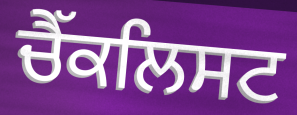
ਚੈੱਕਲਿਸਟ